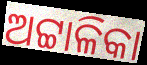
ଅଟ୍ଟାଳିକା